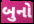
બુનો